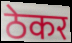
ठेकर